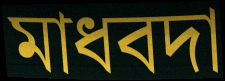
মাধবদা